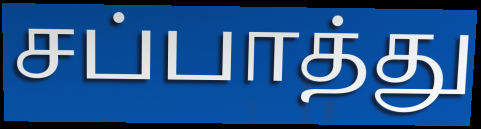
சப்பாத்து